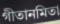
গীতানমিতা